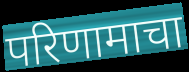
परिणामाचा